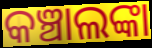
କଞ୍ଚାଲଙ୍କା